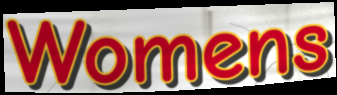
Womens